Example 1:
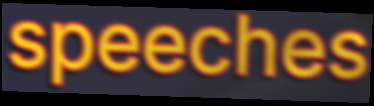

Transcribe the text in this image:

speeches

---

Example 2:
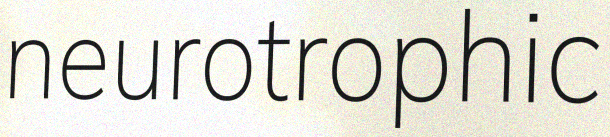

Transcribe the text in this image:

neurotrophic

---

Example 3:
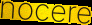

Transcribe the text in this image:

nocere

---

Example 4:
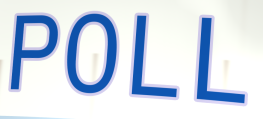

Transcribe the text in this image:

POLL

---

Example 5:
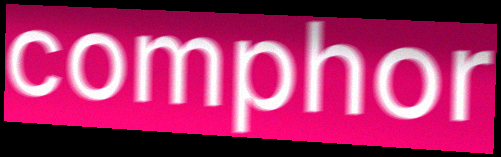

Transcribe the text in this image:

comphor